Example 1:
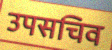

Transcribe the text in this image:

उपसचिव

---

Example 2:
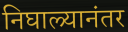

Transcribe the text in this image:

निघाल्यानंतर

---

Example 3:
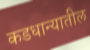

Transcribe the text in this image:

कडधान्यातील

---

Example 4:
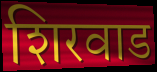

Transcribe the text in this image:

शिरवाड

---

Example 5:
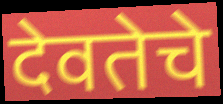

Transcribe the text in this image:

देवतेचे